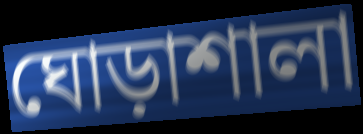
ঘোড়াশালা